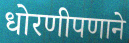
धोरणीपणाने